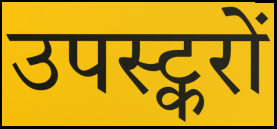
उपस्ट्करों